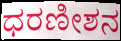
ಧರಣೀಶನ